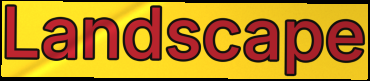
Landscape